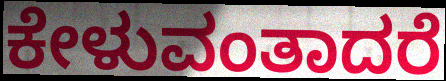
ಕೇಳುವಂತಾದರೆ